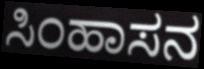
ಸಿಂಹಾಸನ